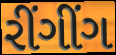
રીંગીંગ